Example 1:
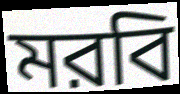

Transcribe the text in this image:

মরবি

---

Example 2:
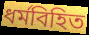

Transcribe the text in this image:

ধর্মবিহিত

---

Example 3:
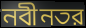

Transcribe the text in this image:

নবীনতর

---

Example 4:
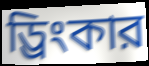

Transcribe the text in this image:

ড্রিংকার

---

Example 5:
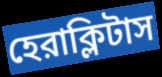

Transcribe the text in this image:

হেরাক্লিটাস